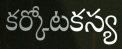
కర్కోటకస్య